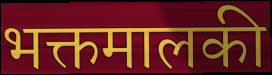
भक्तमालकी